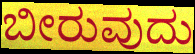
ಬೀರುವುದು